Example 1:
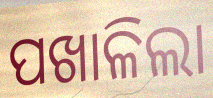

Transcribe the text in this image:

ପଖାଳିଲା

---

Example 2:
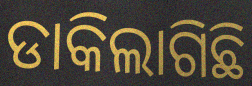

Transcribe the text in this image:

ଡାକିଲାଗିଛି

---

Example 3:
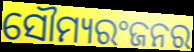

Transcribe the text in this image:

ସୌମ୍ୟରଂଜନର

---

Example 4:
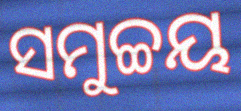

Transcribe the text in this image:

ସମୁଚ୍ଚୟ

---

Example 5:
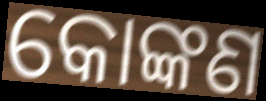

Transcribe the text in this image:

କୋଙ୍କଣ